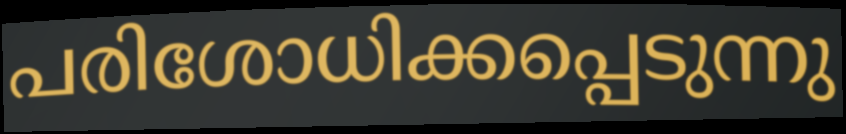
പരിശോധിക്കപ്പെടുന്നു